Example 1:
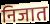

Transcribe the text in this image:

निजात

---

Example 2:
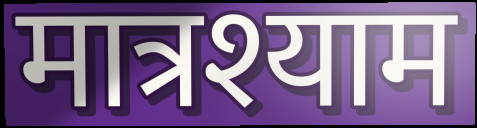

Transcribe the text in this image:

मात्रश्याम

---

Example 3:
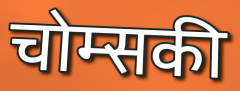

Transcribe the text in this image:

चोम्सकी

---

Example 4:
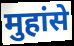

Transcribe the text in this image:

मुहांसे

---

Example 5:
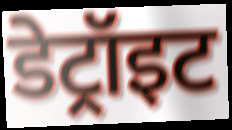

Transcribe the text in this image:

डेट्रॉइट